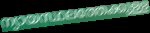
ന്യായസ്ഥലത്തേക്കുള്ള